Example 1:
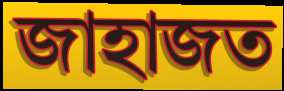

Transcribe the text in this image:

জাহাজত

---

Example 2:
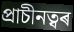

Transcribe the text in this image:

প্ৰাচীনত্বৰ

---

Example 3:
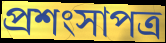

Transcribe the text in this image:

প্ৰশংসাপত্ৰ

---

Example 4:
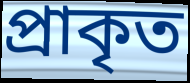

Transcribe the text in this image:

প্ৰাকৃত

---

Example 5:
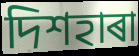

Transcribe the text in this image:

দিশহাৰা